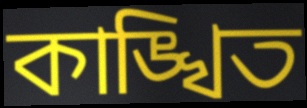
কাঙ্খিত